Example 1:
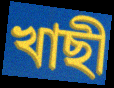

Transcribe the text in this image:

খাছী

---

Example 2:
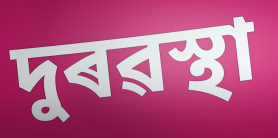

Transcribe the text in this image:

দুৰৱস্থা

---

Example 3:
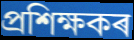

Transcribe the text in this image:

প্ৰশিক্ষকৰ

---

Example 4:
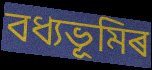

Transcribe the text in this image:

বধ্যভূমিৰ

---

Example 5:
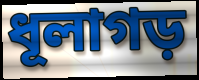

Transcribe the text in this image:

ধূলাগড়